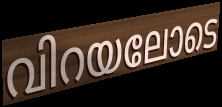
വിറയലോടെ